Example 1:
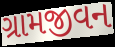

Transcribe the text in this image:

ગ્રામજીવન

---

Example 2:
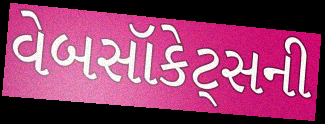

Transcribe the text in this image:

વેબસૉકેટ્સની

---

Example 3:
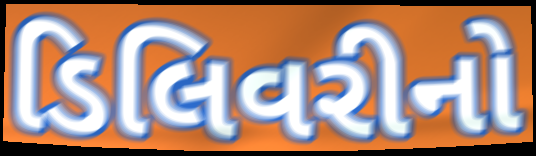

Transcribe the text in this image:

ડિલિવરીનો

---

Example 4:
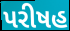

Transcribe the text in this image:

પરીષહ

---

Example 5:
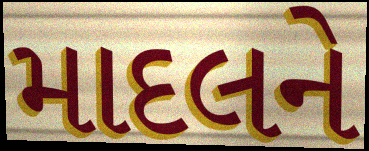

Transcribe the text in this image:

માદલને